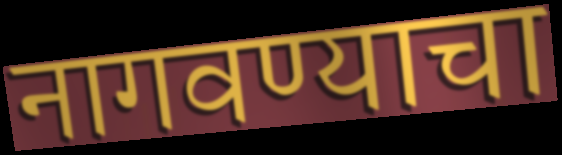
नागवण्याचा